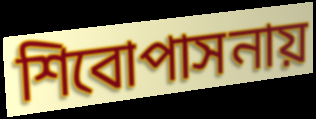
শিবোপাসনায়